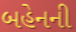
બહેનની